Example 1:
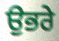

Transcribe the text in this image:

ਉਭਰੇ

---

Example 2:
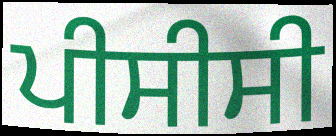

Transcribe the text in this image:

ਪੀਸੀਸੀ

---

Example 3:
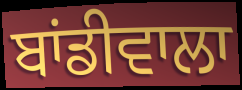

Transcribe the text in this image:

ਬਾਂਡੀਵਾਲਾ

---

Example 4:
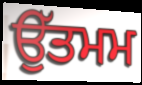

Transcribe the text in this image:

ਉੱਤਮਮ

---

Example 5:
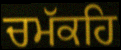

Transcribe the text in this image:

ਚਮੱਕਹਿ